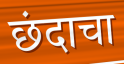
छंदाचा